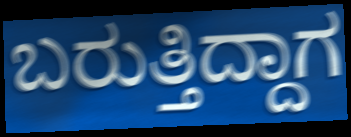
ಬರುತ್ತಿದ್ದಾಗ